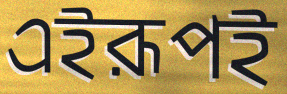
এইরূপই